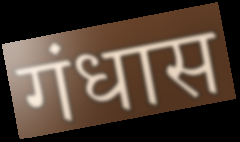
गंधास